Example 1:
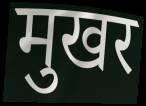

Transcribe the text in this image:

मुखर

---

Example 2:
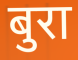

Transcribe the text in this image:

बुरा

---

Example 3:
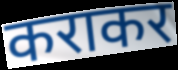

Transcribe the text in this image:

कराकर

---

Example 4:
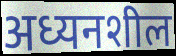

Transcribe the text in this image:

अध्यनशील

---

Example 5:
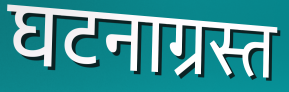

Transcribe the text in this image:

घटनाग्रस्त